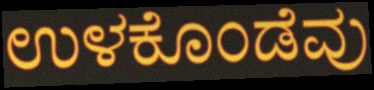
ಉಳಕೊಂಡೆವು